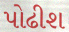
પોઢીશ